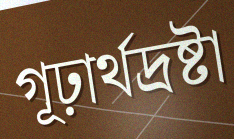
গূঢ়ার্থদ্রষ্টা